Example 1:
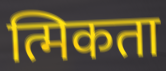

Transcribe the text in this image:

त्मिकता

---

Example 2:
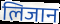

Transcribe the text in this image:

लिजान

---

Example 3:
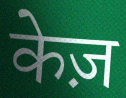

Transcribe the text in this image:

केज़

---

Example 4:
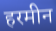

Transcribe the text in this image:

हरमीन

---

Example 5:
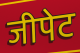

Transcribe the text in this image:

जीपेट